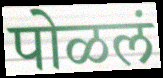
पोळलं